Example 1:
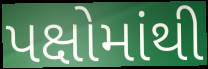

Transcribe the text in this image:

પક્ષોમાંથી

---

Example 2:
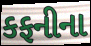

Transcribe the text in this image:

કફનીના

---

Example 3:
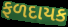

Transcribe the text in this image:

ફળદાયક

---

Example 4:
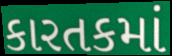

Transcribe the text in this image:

કારતકમાં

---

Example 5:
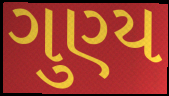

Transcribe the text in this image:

ગુણ્ય